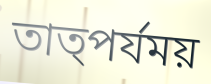
তাত্পর্যময়